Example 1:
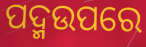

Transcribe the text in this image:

ପଦ୍ମଉପରେ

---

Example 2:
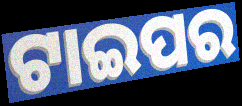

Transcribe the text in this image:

ଟାଇପର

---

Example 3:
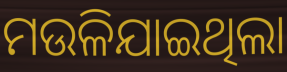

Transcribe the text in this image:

ମଉଳିଯାଇଥିଲା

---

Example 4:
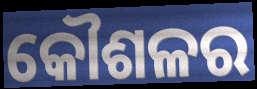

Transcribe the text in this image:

କୌଶଳର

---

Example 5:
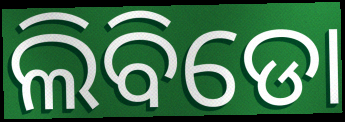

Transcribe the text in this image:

ଲିବିଡୋ